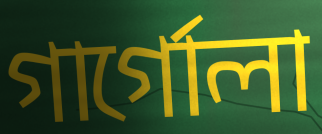
গাৰ্গোলা